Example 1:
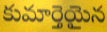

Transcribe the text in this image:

కుమార్తెయైన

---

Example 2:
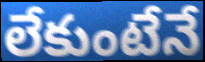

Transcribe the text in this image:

లేకుంటేనే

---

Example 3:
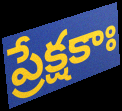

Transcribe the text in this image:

ప్రేక్షకాః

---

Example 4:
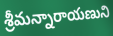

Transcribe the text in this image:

శ్రీమన్నారాయణుని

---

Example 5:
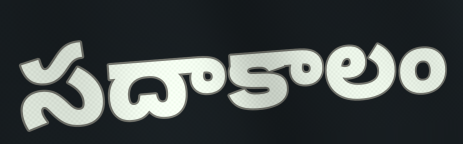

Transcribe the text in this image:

సదాకాలం